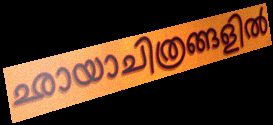
ഛായാചിത്രങ്ങളിൽ